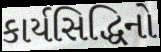
કાર્યસિદ્ધિનો